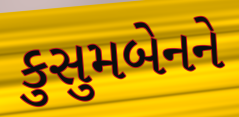
કુસુમબેનને